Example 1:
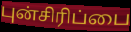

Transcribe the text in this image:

புன்சிரிப்பை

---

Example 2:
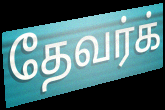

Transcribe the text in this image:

தேவர்க்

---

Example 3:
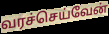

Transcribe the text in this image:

வரச்செய்வேன்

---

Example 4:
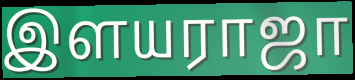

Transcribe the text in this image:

இளயராஜா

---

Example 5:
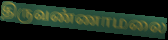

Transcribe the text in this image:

திருவண்ணாமலை